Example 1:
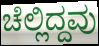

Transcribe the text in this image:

ಚೆಲ್ಲಿದ್ದವು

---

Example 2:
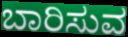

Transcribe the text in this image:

ಬಾರಿಸುವ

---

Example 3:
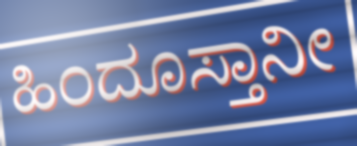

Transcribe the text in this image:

ಹಿಂದೂಸ್ತಾನೀ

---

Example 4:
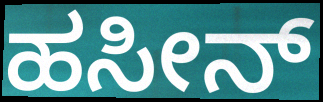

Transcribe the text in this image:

ಹಸೀನ್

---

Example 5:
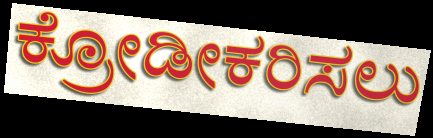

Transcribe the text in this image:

ಕ್ರೋಡೀಕರಿಸಲು